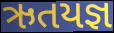
ઋતયજ્ઞ